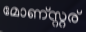
മോണ്സ്റ്റര്